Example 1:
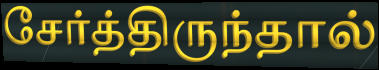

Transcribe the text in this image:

சேர்த்திருந்தால்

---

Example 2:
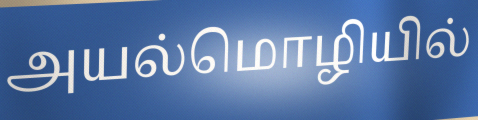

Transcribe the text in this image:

அயல்மொழியில்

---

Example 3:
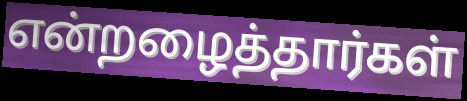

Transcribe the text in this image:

என்றழைத்தார்கள்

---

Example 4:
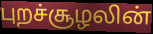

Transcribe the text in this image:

புறச்சூழலின்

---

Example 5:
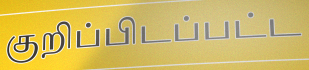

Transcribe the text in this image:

குறிப்பிடப்பட்ட